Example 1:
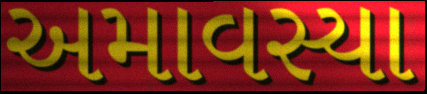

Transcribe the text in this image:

અમાવસ્યા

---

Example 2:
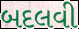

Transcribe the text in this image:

બદલવી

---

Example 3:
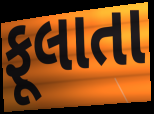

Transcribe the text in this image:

ફૂલાતા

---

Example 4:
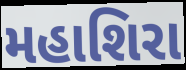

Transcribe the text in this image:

મહાશિરા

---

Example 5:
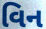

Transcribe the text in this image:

વિન